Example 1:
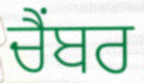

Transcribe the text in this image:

ਚੈਂਬਰ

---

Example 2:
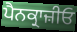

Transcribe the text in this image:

ਪੈਨਕ੍ਰਾਜ਼ੀਓ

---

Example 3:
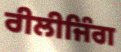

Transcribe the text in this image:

ਰੀਲੀਜਿੰਗ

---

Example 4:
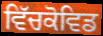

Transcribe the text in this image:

ਵਿੱਚਕੋਵਿਡ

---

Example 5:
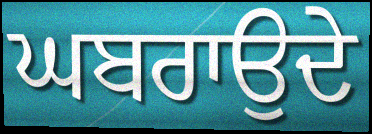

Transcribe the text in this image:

ਘਬਰਾਉਦੇ